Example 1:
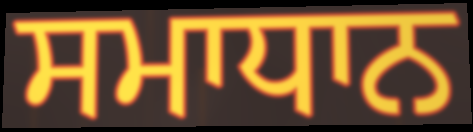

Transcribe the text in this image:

ਸਮਾਧਾਨ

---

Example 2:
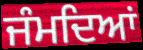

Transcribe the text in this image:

ਜੰਮਦਿਆਂ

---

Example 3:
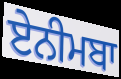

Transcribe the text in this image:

ਏਨੀਮਬਾ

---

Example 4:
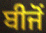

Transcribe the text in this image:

ਬੀਜੋਂ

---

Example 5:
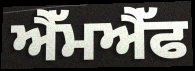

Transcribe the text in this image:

ਐੱਮਐੱਫ